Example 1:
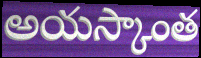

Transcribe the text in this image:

అయస్కాంత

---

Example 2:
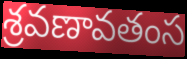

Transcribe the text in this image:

శ్రవణావతంస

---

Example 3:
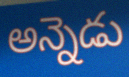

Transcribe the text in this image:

అన్నెడు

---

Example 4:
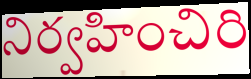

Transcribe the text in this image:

నిర్వహించిరి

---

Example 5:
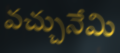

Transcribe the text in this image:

వచ్చునేమి